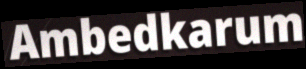
Ambedkarum